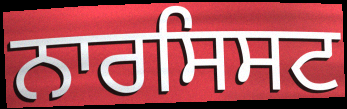
ਨਾਰਸਿਸਟ